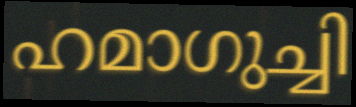
ഹമാഗുച്ചി